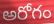
అరోగం